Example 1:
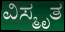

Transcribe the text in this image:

ವಿಸ್ಮೃತ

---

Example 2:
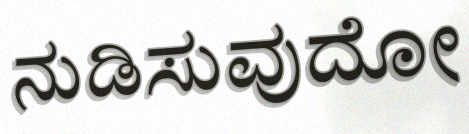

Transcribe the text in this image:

ನುಡಿಸುವುದೋ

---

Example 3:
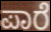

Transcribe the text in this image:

ಪಾರೆ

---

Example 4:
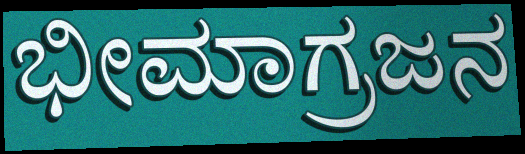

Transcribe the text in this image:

ಭೀಮಾಗ್ರಜನ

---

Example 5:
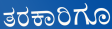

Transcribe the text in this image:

ತರಕಾರಿಗೂ